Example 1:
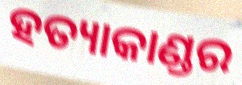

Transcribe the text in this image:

ହତ୍ୟାକାଣ୍ଡର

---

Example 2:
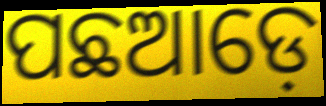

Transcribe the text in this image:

ପଛଆଡ଼େ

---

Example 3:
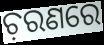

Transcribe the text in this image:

ଚ଼ରଣରେ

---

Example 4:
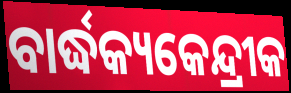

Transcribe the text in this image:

ବାର୍ଦ୍ଧକ୍ୟକେନ୍ଦ୍ରୀକ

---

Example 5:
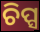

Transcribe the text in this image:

ଚିପ୍ସ